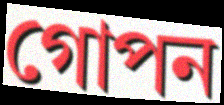
গোপন